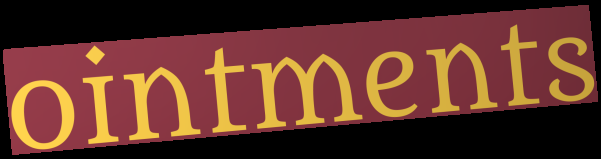
ointments